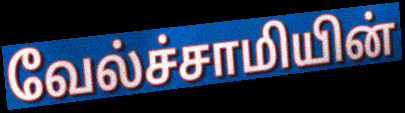
வேல்ச்சாமியின்